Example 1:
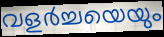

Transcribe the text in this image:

വളർച്ചയെയും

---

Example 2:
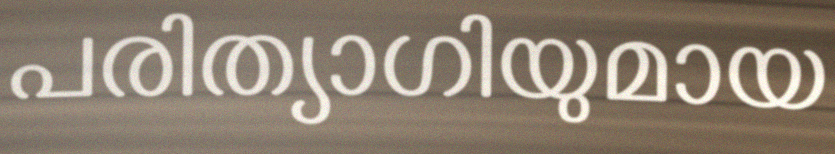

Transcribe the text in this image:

പരിത്യാഗിയുമായ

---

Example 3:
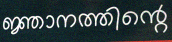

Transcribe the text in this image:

ജ്ഞാനത്തിന്റെ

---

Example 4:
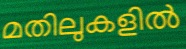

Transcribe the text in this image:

മതിലുകളിൽ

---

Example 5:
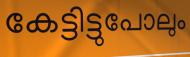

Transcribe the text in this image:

കേട്ടിട്ടുപോലും